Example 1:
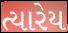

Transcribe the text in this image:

ત્યારેય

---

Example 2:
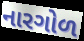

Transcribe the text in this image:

નારગોળ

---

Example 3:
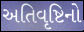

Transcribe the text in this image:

અતિવૃષ્ટિનો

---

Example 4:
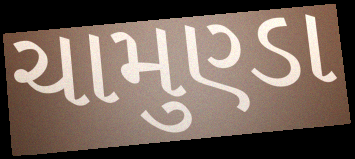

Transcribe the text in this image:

ચામુણ્ડા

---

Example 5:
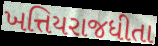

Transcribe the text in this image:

ખત્તિયરાજધીતા